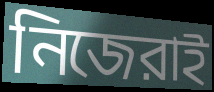
নিজেরাই